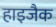
हाइजैक